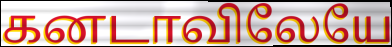
கனடாவிலேயே